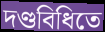
দণ্ডবিধিতে